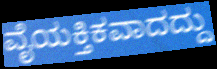
ವೈಯಕ್ತಿಕವಾದದ್ದು